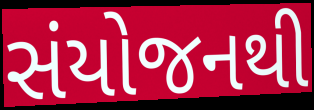
સંયોજનથી